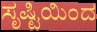
ಸೃಷ್ಟಿಯಿಂದ